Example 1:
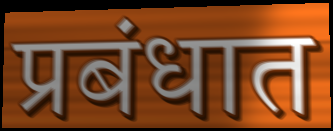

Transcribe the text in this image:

प्रबंधात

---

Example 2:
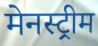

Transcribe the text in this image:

मेनस्ट्रीम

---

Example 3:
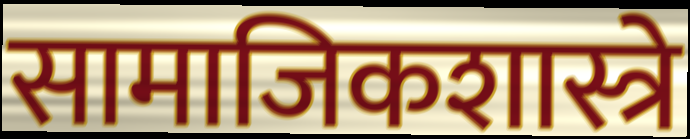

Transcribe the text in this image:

सामाजिकशास्त्रे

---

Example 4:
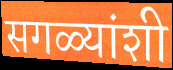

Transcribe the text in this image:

सगळ्यांशी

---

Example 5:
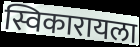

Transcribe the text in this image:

स्विकारायला